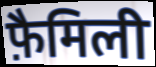
फ़ैमिली